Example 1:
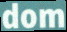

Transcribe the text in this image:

dom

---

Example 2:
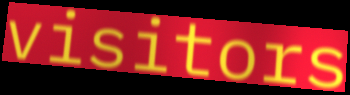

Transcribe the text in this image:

visitors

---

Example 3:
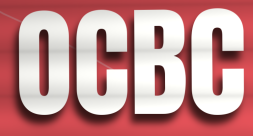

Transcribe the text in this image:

OCBC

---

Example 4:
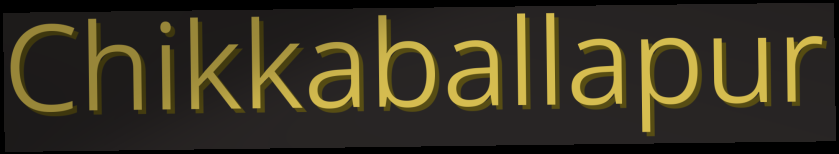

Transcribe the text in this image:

Chikkaballapur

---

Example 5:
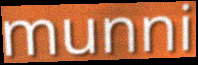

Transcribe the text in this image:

munni